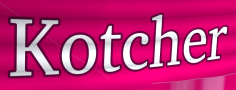
Kotcher